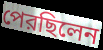
পেরছিলেন